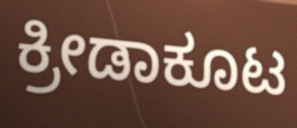
ಕ್ರೀಡಾಕೂಟ